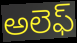
అలెఫ్